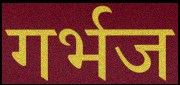
गर्भज